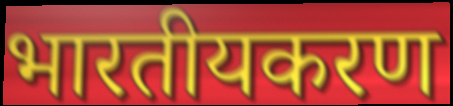
भारतीयकरण